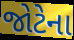
જોટેના